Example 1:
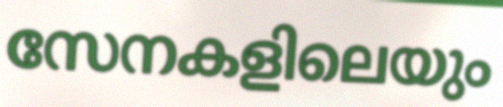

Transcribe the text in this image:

സേനകളിലെയും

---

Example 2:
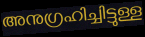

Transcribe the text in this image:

അനുഗ്രഹിച്ചിട്ടുള്ള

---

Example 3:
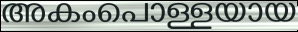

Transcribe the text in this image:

അകംപൊള്ളയായ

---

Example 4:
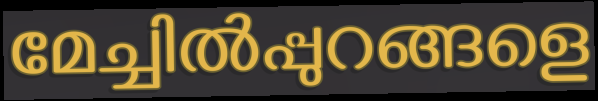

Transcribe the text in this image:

മേച്ചിൽപ്പുറങ്ങളെ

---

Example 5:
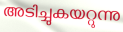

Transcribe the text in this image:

അടിച്ചുകയറ്റുന്നു